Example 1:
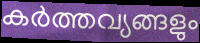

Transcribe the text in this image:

കർത്തവ്യങ്ങളും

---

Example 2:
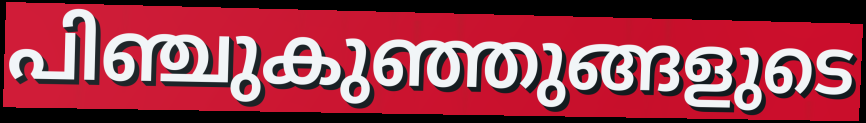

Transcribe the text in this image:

പിഞ്ചുകുഞ്ഞുങ്ങളുടെ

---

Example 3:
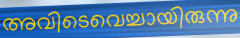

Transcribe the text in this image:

അവിടെവെച്ചായിരുന്നു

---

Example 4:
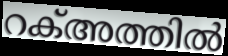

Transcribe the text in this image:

റക്അത്തിൽ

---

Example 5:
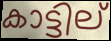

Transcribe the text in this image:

കാട്ടില്